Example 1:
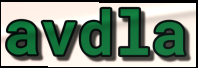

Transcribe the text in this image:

avdla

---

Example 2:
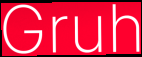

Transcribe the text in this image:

Gruh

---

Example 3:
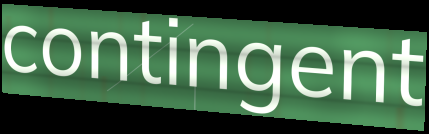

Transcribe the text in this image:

contingent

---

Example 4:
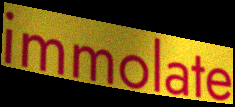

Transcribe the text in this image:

immolate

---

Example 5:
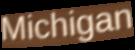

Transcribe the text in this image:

Michigan